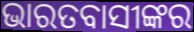
ଭାରତବାସୀଙ୍କର